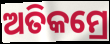
ଅତିକମ୍ରେ